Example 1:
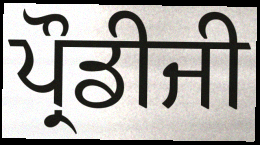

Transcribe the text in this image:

ਪ੍ਰੌਡੀਜੀ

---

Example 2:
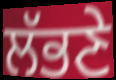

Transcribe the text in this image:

ਲੱਭਣੇ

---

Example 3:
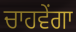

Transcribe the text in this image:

ਚਾਹਵੇਂਗਾ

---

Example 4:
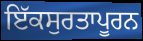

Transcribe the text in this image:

ਇੱਕਸੁਰਤਾਪੂਰਨ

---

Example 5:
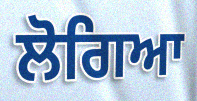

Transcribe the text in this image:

ਲੋਗਿਆ